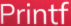
Printf